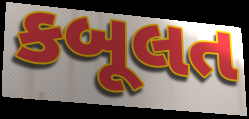
કબૂલત